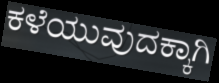
ಕಳೆಯುವುದಕ್ಕಾಗಿ